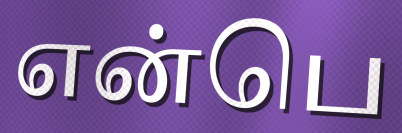
என்பெ